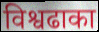
विश्वढाका